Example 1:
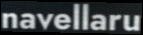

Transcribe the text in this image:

navellaru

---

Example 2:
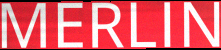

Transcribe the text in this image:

MERLIN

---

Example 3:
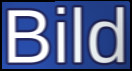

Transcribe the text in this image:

Bild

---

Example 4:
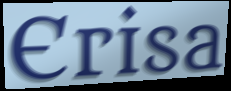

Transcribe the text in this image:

Erisa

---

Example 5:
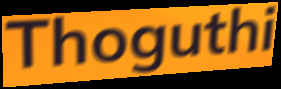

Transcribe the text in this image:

Thoguthi